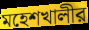
মহেশখালীর